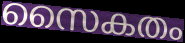
സൈകതം